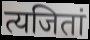
त्यजितां